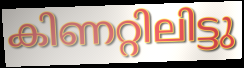
കിണറ്റിലിട്ടു